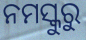
ନମସ୍କୁରୁ